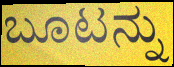
ಬೂಟನ್ನು